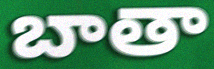
బాతా